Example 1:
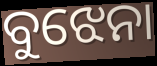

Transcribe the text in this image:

ବୁଝେନା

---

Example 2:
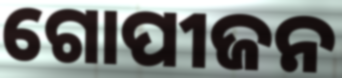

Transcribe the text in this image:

ଗୋପୀଜନ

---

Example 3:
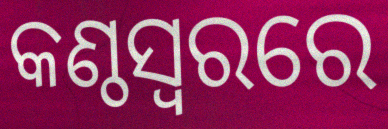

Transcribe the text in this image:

କଣ୍ଠସ୍ୱରରେ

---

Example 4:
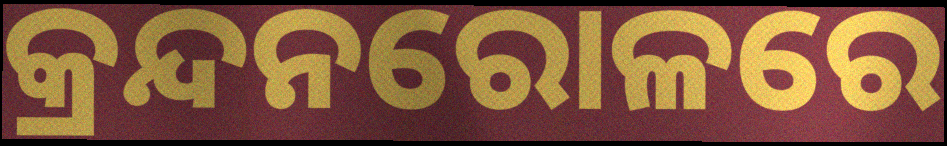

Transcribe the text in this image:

କ୍ରନ୍ଦନରୋଳରେ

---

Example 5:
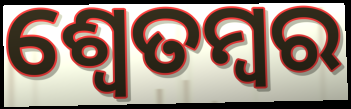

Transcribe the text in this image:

ଶ୍ଵେତମ୍ବର